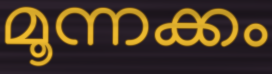
മൂന്നക്കം